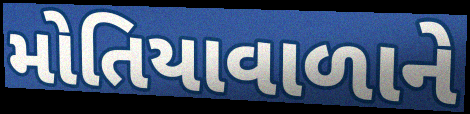
મોતિયાવાળાને